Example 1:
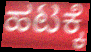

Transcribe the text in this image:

ಹಟಕ್ಕೆ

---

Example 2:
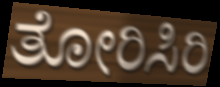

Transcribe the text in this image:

ತೋರಿಸಿರಿ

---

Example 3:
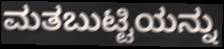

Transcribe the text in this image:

ಮತಬುಟ್ಟಿಯನ್ನು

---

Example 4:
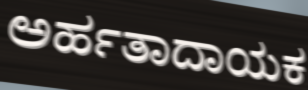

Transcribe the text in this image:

ಅರ್ಹತಾದಾಯಕ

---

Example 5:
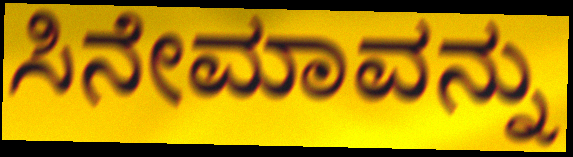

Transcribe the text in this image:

ಸಿನೇಮಾವನ್ನು